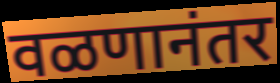
वळणानंतर